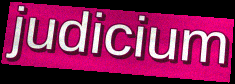
judicium